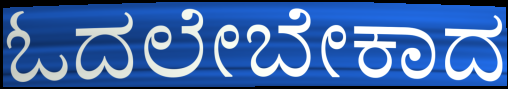
ಓದಲೇಬೇಕಾದ